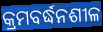
କ୍ରମବର୍ଦ୍ଧନଶୀଳ